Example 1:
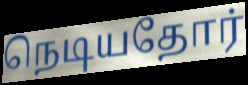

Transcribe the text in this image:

நெடியதோர்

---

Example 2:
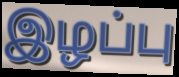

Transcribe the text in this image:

இழப்பு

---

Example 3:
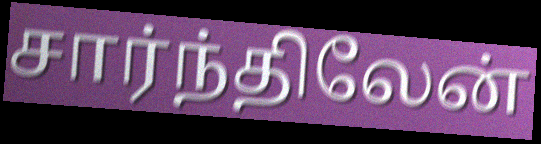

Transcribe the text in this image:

சார்ந்திலேன்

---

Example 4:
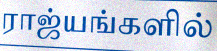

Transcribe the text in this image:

ராஜ்யங்களில்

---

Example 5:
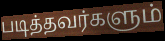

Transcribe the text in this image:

படித்தவர்களும்